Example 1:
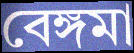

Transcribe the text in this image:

বেঙ্গমা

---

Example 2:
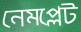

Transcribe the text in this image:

নেমপ্লেট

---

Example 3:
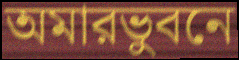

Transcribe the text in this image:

অমারভুবনে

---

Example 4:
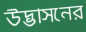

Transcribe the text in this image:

উদ্ভাসনের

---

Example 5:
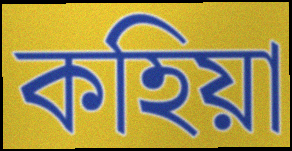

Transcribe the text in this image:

কহিয়া